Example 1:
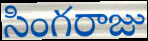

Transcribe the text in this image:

సింగరాజు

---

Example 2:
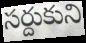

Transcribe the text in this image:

సర్దుకుని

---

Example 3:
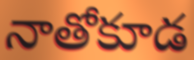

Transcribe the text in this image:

నాతోకూడ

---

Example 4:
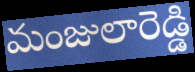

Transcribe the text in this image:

మంజులారెడ్డి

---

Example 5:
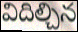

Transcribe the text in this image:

విదిల్చిన